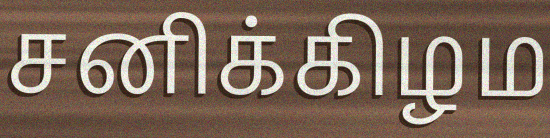
சனிக்கிழம